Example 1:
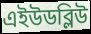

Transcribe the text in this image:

এইউডব্লিউ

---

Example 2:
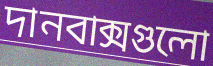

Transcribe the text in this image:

দানবাক্সগুলো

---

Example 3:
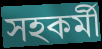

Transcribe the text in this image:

সহকর্মী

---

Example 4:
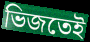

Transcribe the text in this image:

ভিজতেই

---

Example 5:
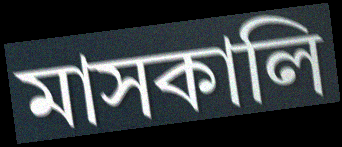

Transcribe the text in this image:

মাসকালি